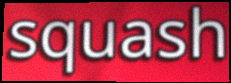
squash